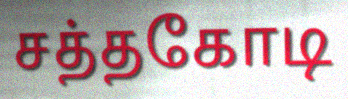
சத்தகோடி